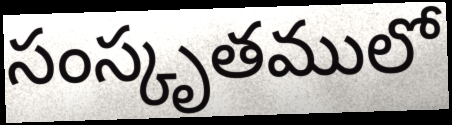
సంస్కృతములో